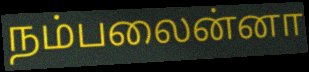
நம்பலைன்னா